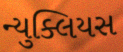
ન્યુક્લિયસ